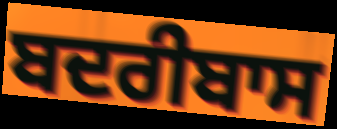
ਬਦਰੀਬਾਸ